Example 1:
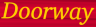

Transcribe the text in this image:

Doorway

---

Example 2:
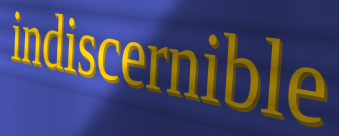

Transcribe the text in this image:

indiscernible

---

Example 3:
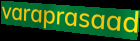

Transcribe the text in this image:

varaprasaad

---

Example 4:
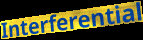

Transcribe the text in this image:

Interferential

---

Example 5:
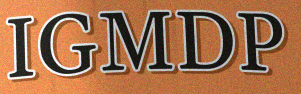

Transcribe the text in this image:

IGMDP